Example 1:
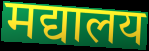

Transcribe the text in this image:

मद्यालय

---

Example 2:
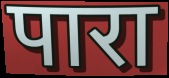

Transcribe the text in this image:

पारा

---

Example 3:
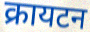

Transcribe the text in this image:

क्रायटन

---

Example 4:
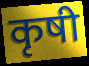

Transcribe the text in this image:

कृषी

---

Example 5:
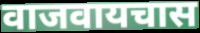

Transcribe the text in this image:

वाजवायचास